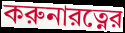
করুনারত্নের